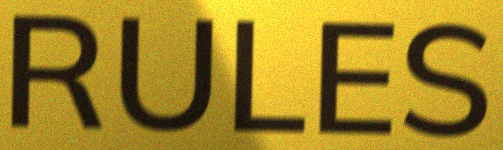
RULES